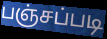
பஞ்சப்படி